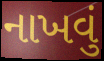
નાખવું